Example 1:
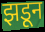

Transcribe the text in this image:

झडून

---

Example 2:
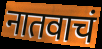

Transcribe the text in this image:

नातवाचं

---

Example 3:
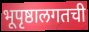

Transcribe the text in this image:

भूपृष्ठालगतची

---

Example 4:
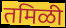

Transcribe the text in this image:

तमिळी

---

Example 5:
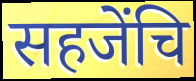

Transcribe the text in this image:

सहजेंचि